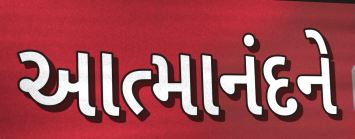
આત્માનંદને